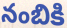
నంబికి